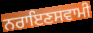
ਨਰਾਇਣਸਵਾਮੀ